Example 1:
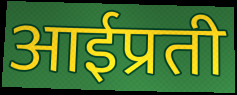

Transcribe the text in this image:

आईप्रती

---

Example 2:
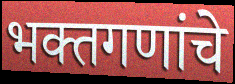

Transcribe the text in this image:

भक्तगणांचे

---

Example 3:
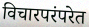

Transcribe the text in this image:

विचारपरंपरेत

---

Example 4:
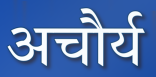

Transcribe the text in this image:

अचौर्य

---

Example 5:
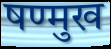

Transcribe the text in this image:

षण्मुख